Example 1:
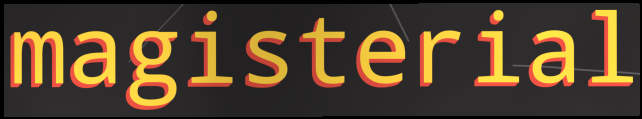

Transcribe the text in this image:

magisterial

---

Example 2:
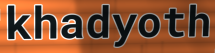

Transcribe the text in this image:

khadyoth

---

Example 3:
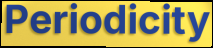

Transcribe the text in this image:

Periodicity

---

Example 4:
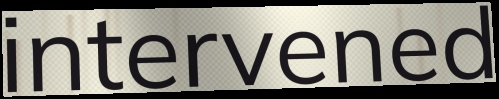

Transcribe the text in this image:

intervened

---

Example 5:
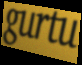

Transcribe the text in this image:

gurtu